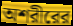
অশরীরের